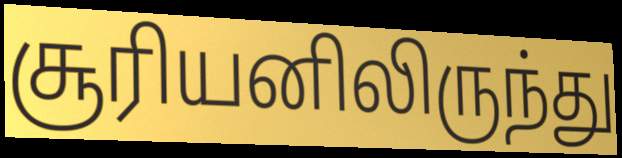
சூரியனிலிருந்து